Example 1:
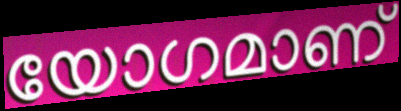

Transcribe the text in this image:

യോഗമാണ്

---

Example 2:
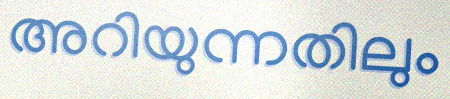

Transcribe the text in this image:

അറിയുന്നതിലും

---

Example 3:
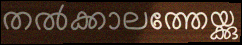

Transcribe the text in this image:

തൽക്കാലത്തേയ്ക്കു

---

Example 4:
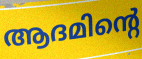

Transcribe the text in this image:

ആദമിന്റെ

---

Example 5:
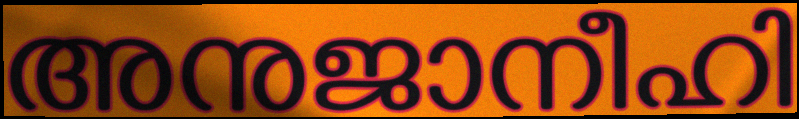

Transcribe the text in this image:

അനുജാനീഹി